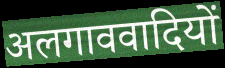
अलगाववादियों